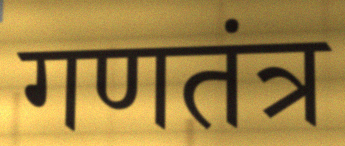
गणतंत्र